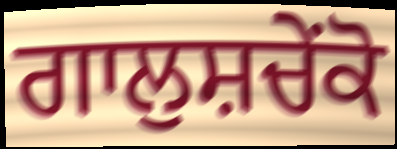
ਗਾਲੁਸ਼ਚੇਂਕੋ